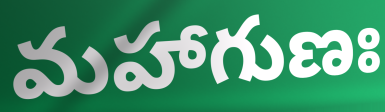
మహాగుణః